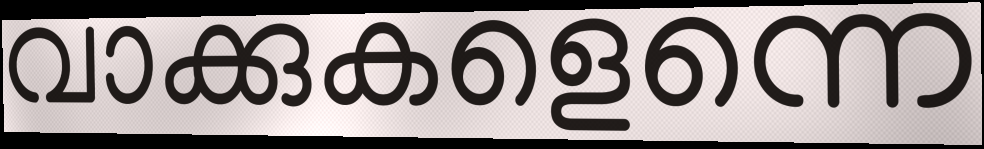
വാക്കുകളെന്നെ